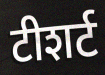
टीशर्ट